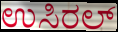
ಉಸಿರಲ್